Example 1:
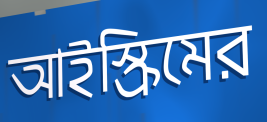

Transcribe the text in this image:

আইস্ক্রিমের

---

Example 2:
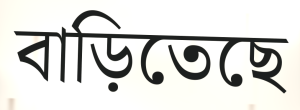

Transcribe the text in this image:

বাড়িতেছে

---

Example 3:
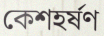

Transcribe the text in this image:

কেশহর্ষণ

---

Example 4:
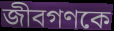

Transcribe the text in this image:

জীবগণকে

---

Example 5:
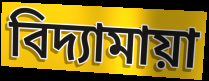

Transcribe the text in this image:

বিদ্যামায়া